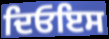
ਦਿਓਇਸ